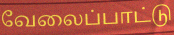
வேலைப்பாட்டு